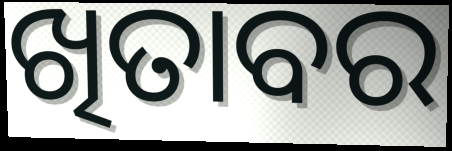
ଖିତାବର